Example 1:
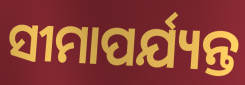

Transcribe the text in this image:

ସୀମାପର୍ଯ୍ୟନ୍ତ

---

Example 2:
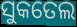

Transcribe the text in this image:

ସୁକତେଲ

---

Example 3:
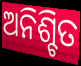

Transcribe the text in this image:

ଅନିଶ୍ଚିତ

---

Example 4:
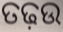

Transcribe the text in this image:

ତଢ଼ଉ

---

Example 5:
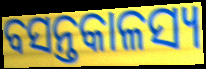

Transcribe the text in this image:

ବସନ୍ତକାଳସ୍ୟ